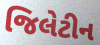
જિલેટીન